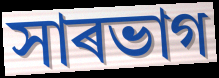
সাৰভাগ